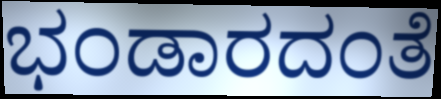
ಭಂಡಾರದಂತೆ